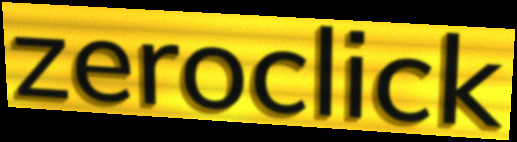
zeroclick